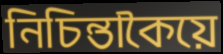
নিচিন্তাকৈয়ে